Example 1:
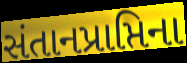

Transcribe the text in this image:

સંતાનપ્રાપ્તિના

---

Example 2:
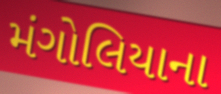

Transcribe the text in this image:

મંગોલિયાના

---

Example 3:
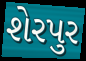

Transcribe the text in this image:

શેરપુર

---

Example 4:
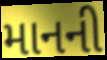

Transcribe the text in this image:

માનની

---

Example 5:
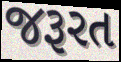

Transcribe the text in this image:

જરૂરત